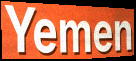
Yemen